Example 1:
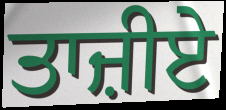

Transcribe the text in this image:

ਤਾਜ਼ੀਏ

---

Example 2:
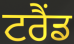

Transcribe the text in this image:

ਟਰੈਂਡ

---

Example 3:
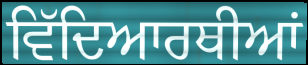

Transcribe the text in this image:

ਵਿੱਦਿਆਰਥੀਆਂ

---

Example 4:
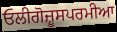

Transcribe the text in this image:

ਓਲੀਗੋਜ਼ੂਸਪਰਮੀਆ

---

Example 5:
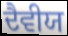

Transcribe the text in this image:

ਦੈਵੀਯ